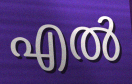
എൽ